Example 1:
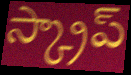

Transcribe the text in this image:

స్క్రాప్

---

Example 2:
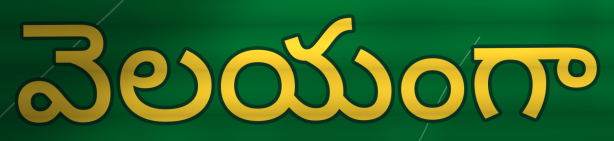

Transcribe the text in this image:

వెలయంగా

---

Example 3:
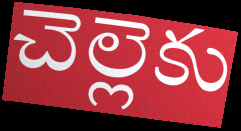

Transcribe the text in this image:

చెల్లెకు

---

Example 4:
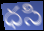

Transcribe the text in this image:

ధసి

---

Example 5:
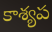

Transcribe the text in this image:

కాశ్యప